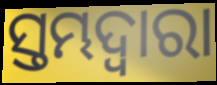
ସ୍ତମ୍ଭଦ୍ୱାରା